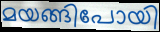
മയങ്ങിപോയി